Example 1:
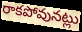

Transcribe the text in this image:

రాకపోవునట్లు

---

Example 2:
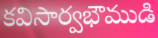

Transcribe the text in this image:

కవిసార్వభౌముడి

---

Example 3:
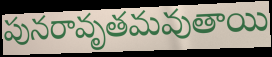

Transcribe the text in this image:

పునరావృతమవుతాయి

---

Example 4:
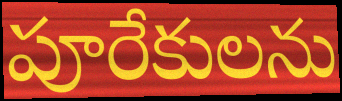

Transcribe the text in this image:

పూరేకులను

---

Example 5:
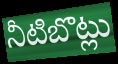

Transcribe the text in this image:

నీటిబొట్లు